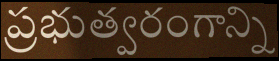
ప్రభుత్వరంగాన్ని